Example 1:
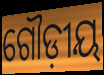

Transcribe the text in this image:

ଗୌଡ଼ୀୟ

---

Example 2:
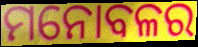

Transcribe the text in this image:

ମନୋବଳର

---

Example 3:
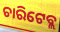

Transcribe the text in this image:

ଚାରିଟେବ୍ଲ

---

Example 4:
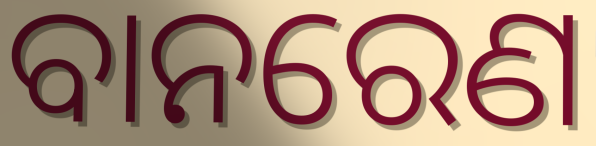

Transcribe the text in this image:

ବାନରେଣ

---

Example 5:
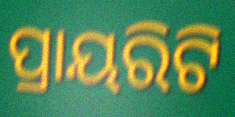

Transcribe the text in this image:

ପ୍ରାୟରିଟି